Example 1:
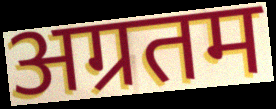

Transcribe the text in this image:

अग्रतम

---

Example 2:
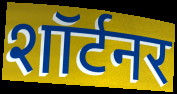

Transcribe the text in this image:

शॉर्टनर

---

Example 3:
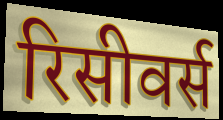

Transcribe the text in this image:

रिसीवर्स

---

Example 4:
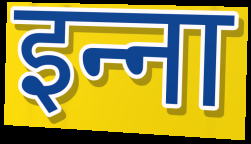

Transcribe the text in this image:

इन्ना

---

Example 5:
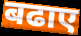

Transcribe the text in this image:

बढाए